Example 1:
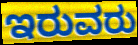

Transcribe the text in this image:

ಇರುವರು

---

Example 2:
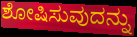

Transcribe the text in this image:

ಶೋಷಿಸುವುದನ್ನು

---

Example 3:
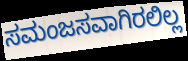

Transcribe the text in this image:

ಸಮಂಜಸವಾಗಿರಲಿಲ್ಲ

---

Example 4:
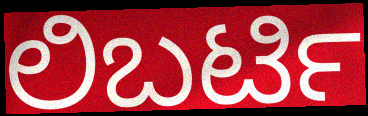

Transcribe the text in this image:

ಲಿಬರ್ಟಿ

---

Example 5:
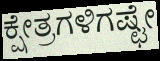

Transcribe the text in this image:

ಕ್ಷೇತ್ರಗಳಿಗಷ್ಟೇ